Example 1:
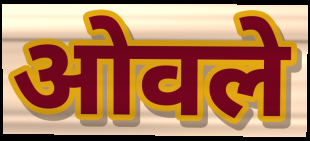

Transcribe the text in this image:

ओवले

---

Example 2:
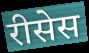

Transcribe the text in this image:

रीसेस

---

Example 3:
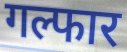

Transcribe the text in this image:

गल्फार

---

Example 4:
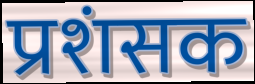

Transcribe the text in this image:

प्रशंसक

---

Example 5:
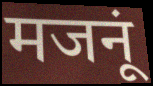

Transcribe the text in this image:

मजनूं